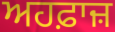
ਅਹਫ਼ਾਜ਼